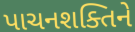
પાચનશક્તિને